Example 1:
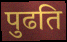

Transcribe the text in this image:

पुढति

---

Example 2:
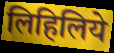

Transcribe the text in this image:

लिहिलिये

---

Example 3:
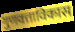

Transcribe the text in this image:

गुणवत्ताविकास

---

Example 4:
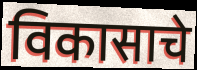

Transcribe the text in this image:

विकासाचे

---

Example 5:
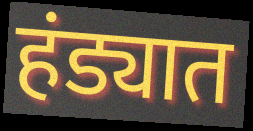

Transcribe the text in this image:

हंड्यात